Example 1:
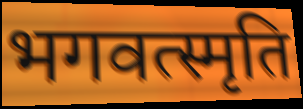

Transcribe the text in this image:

भगवत्स्मृति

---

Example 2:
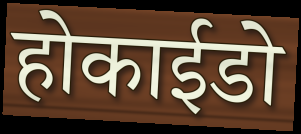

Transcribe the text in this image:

होकाईडो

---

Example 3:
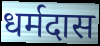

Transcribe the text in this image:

धर्मदास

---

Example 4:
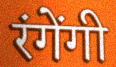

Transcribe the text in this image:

रंगेंगी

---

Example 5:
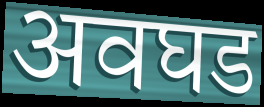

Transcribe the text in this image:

अवघड